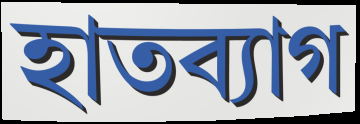
হাতব্যাগ